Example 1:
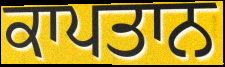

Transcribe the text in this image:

ਕਾਪਤਾਨ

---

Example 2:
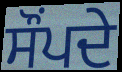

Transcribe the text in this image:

ਸੌਂਪਦੇ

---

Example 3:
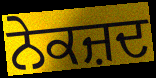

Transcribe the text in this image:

ਨੇਕਜ਼ਦ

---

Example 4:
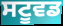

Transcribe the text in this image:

ਸਟੂਵਡ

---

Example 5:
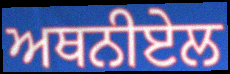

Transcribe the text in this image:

ਅਥਨੀਏਲ